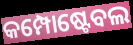
କମ୍ପୋଷ୍ଟେବଲ